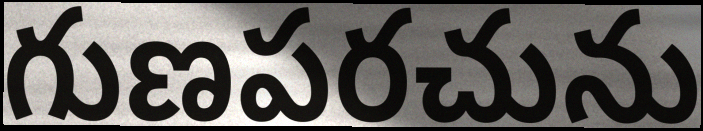
గుణపరచును